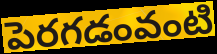
పెరగడంవంటి